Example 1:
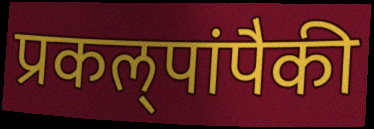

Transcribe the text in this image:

प्रकल्पांपैकी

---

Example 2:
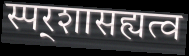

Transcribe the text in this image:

स्पर्शासह्यत्व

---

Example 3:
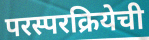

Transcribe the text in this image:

परस्परक्रियेची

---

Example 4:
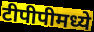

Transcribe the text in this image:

टीपीपीमध्ये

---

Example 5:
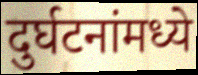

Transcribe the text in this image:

दुर्घटनांमध्ये